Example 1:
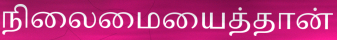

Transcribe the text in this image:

நிலைமையைத்தான்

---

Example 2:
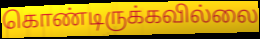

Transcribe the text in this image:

கொண்டிருக்கவில்லை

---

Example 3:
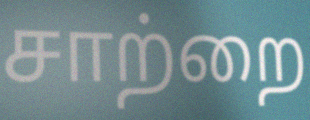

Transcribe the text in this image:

சாற்றை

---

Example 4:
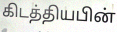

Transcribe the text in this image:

கிடத்தியபின்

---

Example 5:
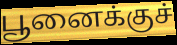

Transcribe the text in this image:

பூனைக்குச்